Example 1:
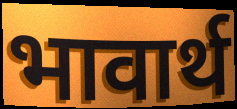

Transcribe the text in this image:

भावार्थ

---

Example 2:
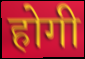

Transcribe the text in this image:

होगी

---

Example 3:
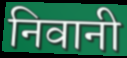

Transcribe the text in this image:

निवानी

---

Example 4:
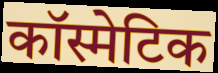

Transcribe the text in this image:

कॉस्मेटिक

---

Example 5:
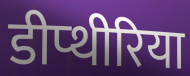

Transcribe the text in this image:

डीप्थीरिया